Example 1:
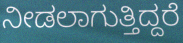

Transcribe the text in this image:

ನೀಡಲಾಗುತ್ತಿದ್ದರೆ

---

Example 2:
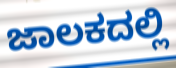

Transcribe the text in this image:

ಜಾಲಕದಲ್ಲಿ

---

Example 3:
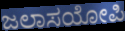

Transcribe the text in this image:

ಜಲಾಸಯೋಪಿ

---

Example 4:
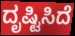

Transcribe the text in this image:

ದೃಷ್ಟಿಸಿದೆ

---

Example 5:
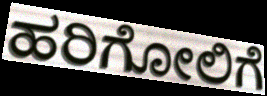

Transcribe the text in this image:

ಹರಿಗೋಲಿಗೆ